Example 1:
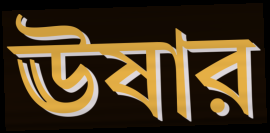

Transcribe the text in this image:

ঊষার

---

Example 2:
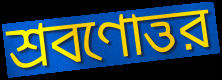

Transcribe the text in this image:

শ্রবণোত্তর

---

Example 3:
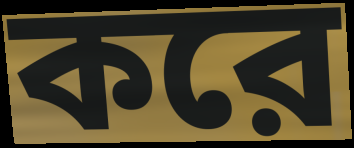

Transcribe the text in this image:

করে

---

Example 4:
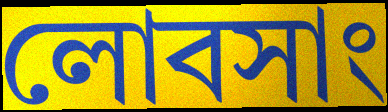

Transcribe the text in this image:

লোবসাং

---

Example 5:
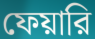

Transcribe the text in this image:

ফেয়ারি